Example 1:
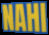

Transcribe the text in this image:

NAHI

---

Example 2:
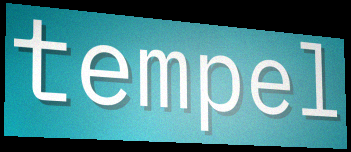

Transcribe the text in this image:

tempel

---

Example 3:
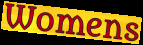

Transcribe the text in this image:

Womens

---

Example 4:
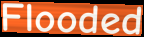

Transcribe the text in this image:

Flooded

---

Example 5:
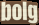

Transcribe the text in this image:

bolg